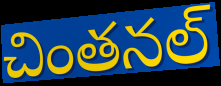
చింతనల్